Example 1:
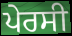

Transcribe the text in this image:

ਪੇਰਸੀ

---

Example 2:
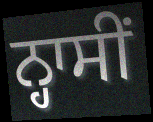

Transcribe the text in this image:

ਨ੍ਹਾਸੀਂ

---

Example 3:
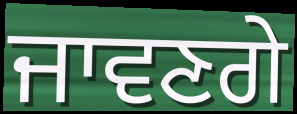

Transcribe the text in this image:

ਜਾਵਣਗੇ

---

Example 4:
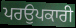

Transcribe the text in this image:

ਪਰਉਪਕਾਰੀ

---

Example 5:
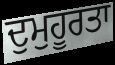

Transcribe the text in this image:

ਦੁਮੁਹੂਰਤਾ